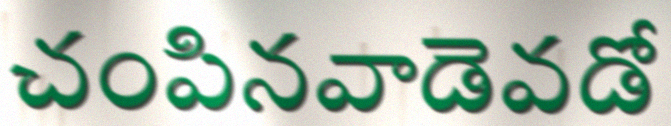
చంపినవాడెవడో